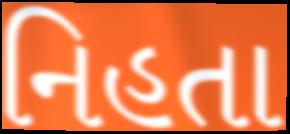
નિહતા